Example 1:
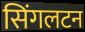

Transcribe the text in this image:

सिंगलटन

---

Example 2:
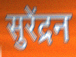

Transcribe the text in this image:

सुरेंद्रन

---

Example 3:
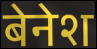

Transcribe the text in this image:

बेनेश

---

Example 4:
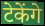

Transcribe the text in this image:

टेकेंगे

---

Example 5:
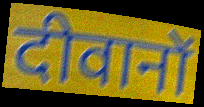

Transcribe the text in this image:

दीवानों